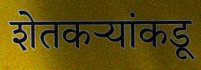
शेतकऱ्यांकडू